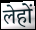
लेहों